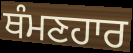
ਥੰਮਣਹਾਰ